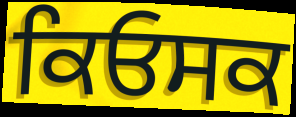
ਕਿਓਸਕ